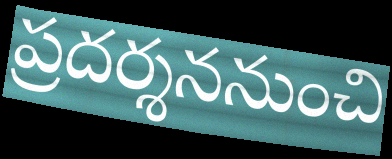
ప్రదర్శననుంచి